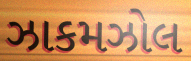
ઝાકમઝોલ